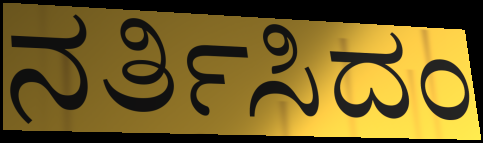
ನರ್ತಿಸಿದಂ